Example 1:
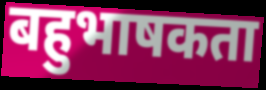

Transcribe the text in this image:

बहुभाषकता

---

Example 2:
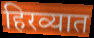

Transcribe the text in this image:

हिरव्यात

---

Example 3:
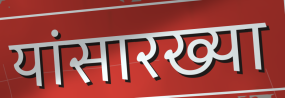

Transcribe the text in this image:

यांसारख्या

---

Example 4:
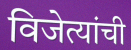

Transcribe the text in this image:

विजेत्यांची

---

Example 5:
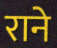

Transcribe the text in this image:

राने